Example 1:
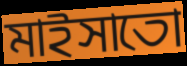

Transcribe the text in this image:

মাইসাতো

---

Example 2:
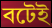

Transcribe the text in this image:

বটেই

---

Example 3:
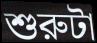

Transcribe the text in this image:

শুরুটা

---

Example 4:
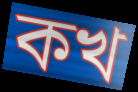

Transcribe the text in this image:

কখ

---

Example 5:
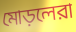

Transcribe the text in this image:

মোড়লেরা